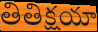
తితిక్షయా